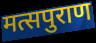
मत्सपुराण